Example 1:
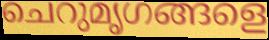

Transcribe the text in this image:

ചെറുമൃഗങ്ങളെ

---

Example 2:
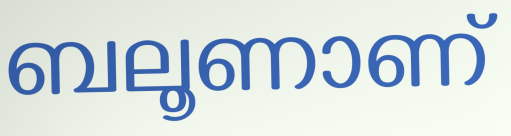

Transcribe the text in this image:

ബലൂണാണ്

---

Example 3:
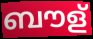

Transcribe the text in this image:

ബൗള്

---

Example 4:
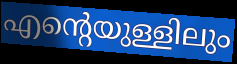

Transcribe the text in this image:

എന്റെയുള്ളിലും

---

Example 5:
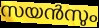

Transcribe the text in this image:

സയൻസും